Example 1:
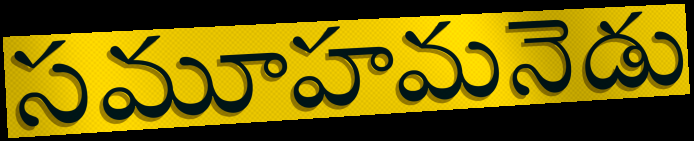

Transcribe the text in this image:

సమూహమనెడు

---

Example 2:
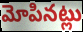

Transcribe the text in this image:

మోపినట్లు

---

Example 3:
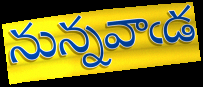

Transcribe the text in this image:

నున్నవాఁడ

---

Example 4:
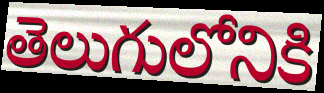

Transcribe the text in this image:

తెలుగులోనికి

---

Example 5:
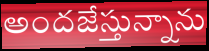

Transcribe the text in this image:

అందజేస్తున్నాను